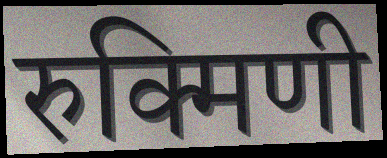
रुक्मिणी